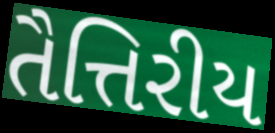
તૈત્તિરીય